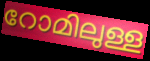
റോമിലുള്ള